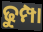
ଢୁମ୍ପା